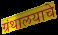
ग्रंथालयाचे